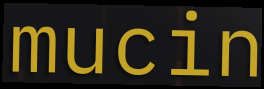
mucin